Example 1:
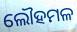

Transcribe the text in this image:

ଲୌହମଳ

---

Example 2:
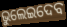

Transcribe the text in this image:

ଭୁଲେଇଦେବ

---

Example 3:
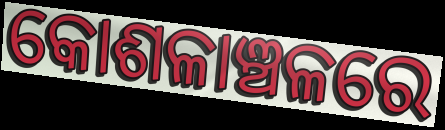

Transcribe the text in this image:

କୋଶଳାଞ୍ଚଳରେ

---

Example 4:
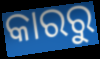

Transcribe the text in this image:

କାରରୁ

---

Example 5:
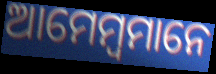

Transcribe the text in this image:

ଆମେମ୍ବମାନେ